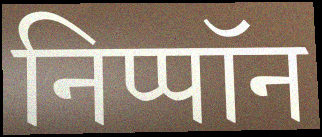
निप्पॉन